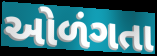
ઓળંગતા